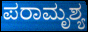
ಪರಾಮೃಶ್ಯ